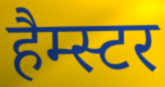
हैम्स्टर